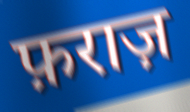
फ़राज़